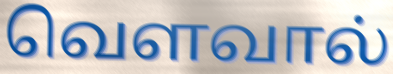
வெளவால்